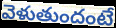
వెళుతుందంటే